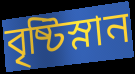
বৃষ্টিস্নান